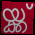
യ്ക്ക്